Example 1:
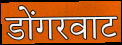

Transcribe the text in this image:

डोंगरवाट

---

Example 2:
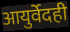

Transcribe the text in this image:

आयुर्वेदही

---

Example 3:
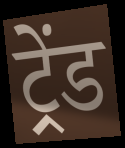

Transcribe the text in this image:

ट्रेंड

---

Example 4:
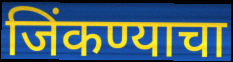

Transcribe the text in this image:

जिंकण्याचा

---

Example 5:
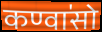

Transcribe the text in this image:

कण्वा॑सो